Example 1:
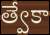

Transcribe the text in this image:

త్వేకా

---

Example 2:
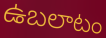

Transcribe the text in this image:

ఉబలాటం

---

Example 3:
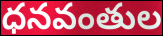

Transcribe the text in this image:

ధనవంతుల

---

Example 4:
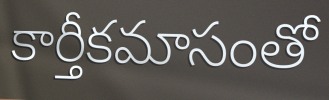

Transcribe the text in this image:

కార్తీకమాసంతో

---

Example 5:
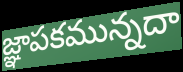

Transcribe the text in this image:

జ్ఞాపకమున్నదా